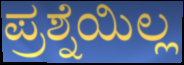
ಪ್ರಶ್ನೆಯಿಲ್ಲ